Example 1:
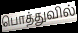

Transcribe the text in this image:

பொத்துவில்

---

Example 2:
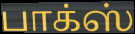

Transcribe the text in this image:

பாக்ஸ்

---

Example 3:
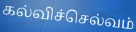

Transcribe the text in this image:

கல்விச்செல்வம்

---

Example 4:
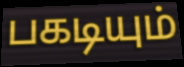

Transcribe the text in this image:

பகடியும்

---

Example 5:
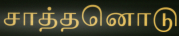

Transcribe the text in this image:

சாத்தனொடு